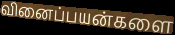
வினைப்பயன்களை